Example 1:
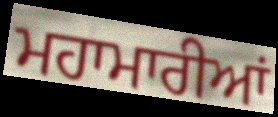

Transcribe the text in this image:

ਮਹਾਮਾਰੀਆਂ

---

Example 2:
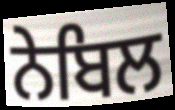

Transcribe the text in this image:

ਨੇਬਿਲ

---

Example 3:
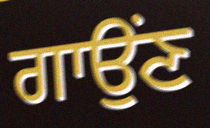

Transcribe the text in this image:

ਗਾਉਂਣ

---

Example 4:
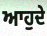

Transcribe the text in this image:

ਆਹੁਦੇ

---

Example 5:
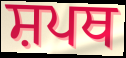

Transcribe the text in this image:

ਸ਼ਪਥ